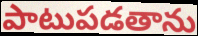
పాటుపడతాను